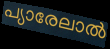
പ്യാരേലാൽ